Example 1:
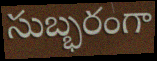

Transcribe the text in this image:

సుబ్భరంగా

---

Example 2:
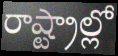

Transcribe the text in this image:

రాష్ట్రాల్లో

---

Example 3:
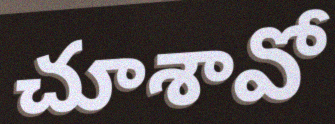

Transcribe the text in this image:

చూశావో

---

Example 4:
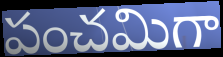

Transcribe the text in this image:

పంచమిగా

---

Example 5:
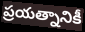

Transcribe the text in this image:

ప్రయత్నానికీ